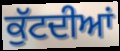
ਕੁੱਟਦੀਆਂ